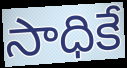
సాధికే